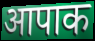
आपाक